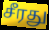
சீரது